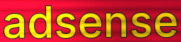
adsense